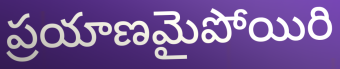
ప్రయాణమైపోయిరి